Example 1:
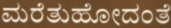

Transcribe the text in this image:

ಮರೆತುಹೋದಂತೆ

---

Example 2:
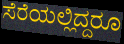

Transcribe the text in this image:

ಸೆರೆಯಲ್ಲಿದ್ದರೂ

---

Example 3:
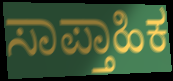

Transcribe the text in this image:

ಸಾಪ್ತಾಹಿಕ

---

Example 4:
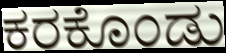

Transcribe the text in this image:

ಕರಕೊಂಡು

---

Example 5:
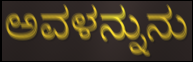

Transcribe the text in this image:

ಅವಳನ್ನುನು